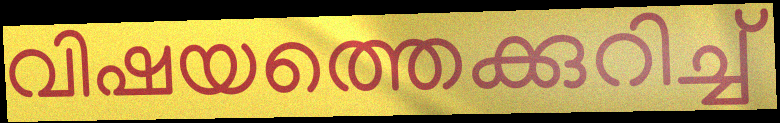
വിഷയത്തെക്കുറിച്ച്